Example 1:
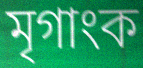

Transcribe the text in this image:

মৃগাংক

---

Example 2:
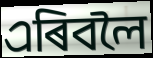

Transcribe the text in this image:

এৰিবলৈ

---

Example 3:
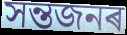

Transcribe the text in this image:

সন্তজনৰ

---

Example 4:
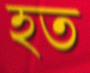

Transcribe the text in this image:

হত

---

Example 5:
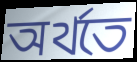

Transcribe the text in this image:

অৰ্থতে